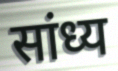
सांध्य